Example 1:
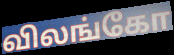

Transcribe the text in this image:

விலங்கோ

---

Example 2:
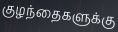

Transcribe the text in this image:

குழந்தைகளுக்கு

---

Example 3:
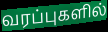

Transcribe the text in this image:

வரப்புகளில்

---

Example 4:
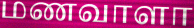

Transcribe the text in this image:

மணவாளா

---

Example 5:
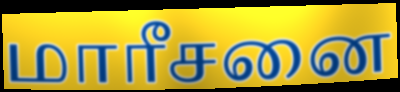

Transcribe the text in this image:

மாரீசனை